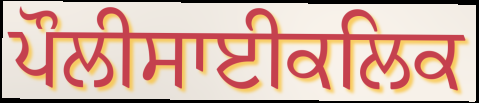
ਪੌਲੀਸਾਈਕਲਿਕ